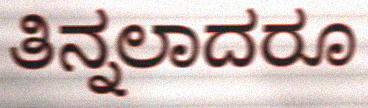
ತಿನ್ನಲಾದರೂ